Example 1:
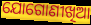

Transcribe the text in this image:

ଯୋଗୋଣୀଖିଆ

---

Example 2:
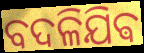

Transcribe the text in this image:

ବଦଳିଯିଵ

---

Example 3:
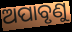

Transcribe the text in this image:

ଅପାବୃଣୁ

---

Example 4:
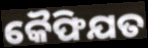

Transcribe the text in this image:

କୈଫିଯତ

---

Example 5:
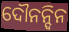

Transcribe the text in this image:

ଦୌନନ୍ଦିନ